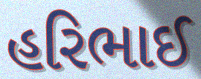
હરિભાઈ